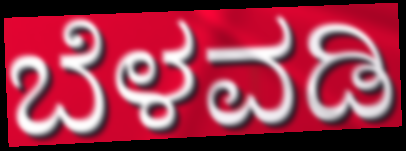
ಬೆಳವಡಿ